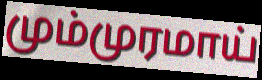
மும்முரமாய்